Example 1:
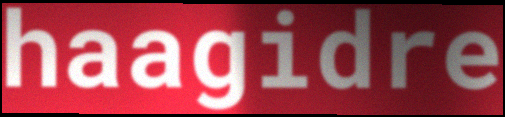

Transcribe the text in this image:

haagidre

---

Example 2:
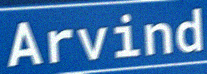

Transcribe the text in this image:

Arvind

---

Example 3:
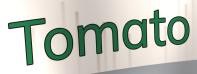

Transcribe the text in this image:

Tomato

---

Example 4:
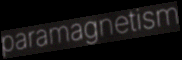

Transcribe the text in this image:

paramagnetism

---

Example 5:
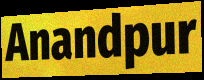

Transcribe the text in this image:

Anandpur